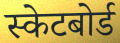
स्केटबोर्ड